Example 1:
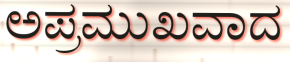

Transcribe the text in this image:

ಅಪ್ರಮುಖವಾದ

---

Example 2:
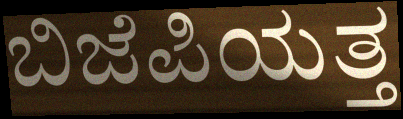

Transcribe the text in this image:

ಬಿಜೆಪಿಯತ್ತ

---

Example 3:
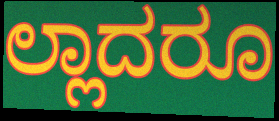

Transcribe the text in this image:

ಲ್ಲಾದರೂ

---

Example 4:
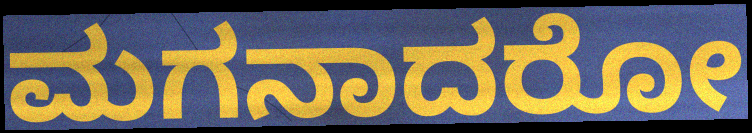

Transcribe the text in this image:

ಮಗನಾದರೋ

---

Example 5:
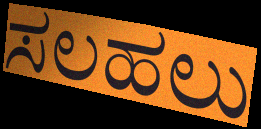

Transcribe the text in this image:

ಸಲಹಲು